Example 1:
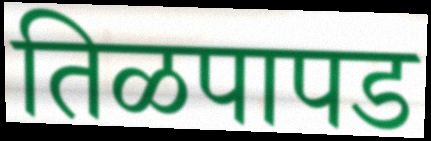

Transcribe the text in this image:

तिळपापड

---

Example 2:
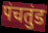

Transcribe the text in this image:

पंचतुंड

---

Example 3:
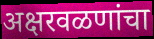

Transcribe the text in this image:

अक्षरवळणांचा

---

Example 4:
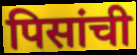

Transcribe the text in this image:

पिसांची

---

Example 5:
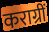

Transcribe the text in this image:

कराग्रीं